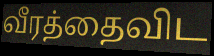
வீரத்தைவிட